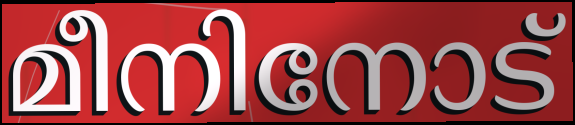
മീനിനോട്